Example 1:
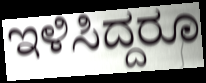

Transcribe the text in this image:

ಇಳಿಸಿದ್ದರೂ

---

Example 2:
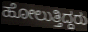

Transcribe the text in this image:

ಹೋಲುತ್ತಿದ್ದರು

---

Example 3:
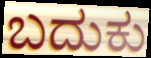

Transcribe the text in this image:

ಬದುಕು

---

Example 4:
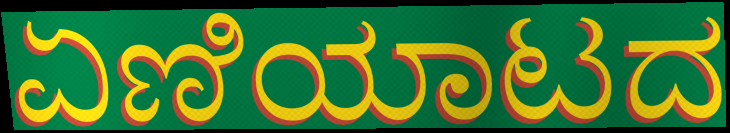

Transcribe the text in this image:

ಏಣಿಯಾಟದ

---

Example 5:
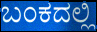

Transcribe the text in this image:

ಬಂಕದಲ್ಲಿ